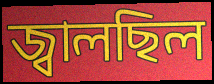
জ্বালছিল